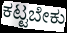
ಕಟ್ಟಬೇಕು